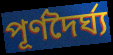
পূর্ণদৈর্ঘ্য